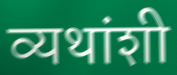
व्यथांशी